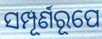
ସମ୍ପୂର୍ଣରୂପେ